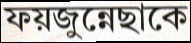
ফয়জুন্নেছাকে